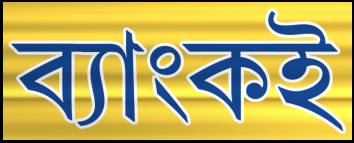
ব্যাংকই